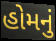
હોમનું